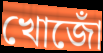
খোজোঁ